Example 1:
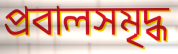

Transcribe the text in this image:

প্রবালসমৃদ্ধ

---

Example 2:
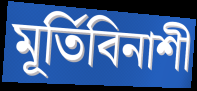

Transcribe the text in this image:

মূর্তিবিনাশী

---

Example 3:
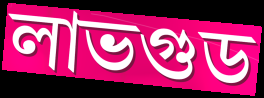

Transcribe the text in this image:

লাভগুড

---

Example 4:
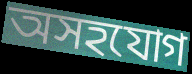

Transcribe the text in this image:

অসহযোগ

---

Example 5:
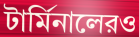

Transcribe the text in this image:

টার্মিনালেরও